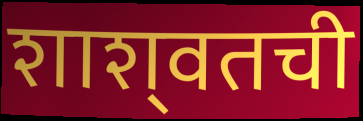
शाश्वतची